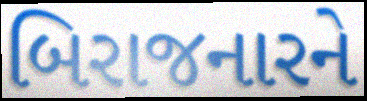
બિરાજનારને